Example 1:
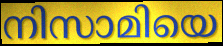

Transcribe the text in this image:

നിസാമിയെ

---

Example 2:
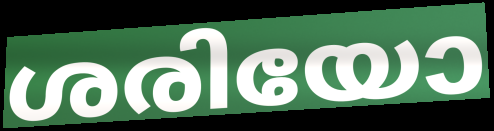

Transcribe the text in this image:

ശരിയോ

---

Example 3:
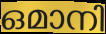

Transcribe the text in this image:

ഒമാനി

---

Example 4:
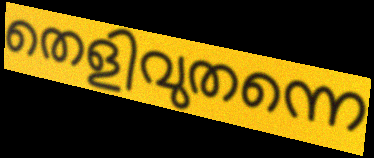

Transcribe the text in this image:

തെളിവുതന്നെ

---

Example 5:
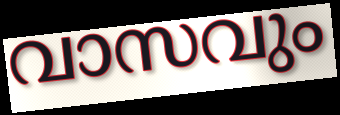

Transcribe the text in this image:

വാസവും